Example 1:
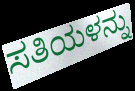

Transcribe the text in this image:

ಸತಿಯಳನ್ನು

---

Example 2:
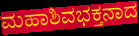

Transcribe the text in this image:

ಮಹಾಶಿವಭಕ್ತನಾದ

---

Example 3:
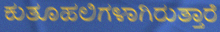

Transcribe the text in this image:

ಕುತೂಹಲಿಗಳಾಗಿರುತ್ತಾರೆ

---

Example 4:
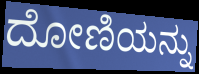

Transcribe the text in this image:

ದೋಣಿಯನ್ನು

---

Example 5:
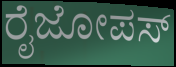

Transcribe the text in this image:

ರೈಜೋಪಸ್